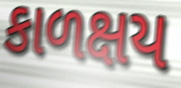
કાળક્ષય